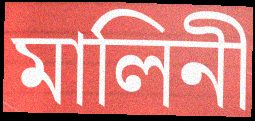
মালিনী